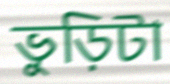
ভুড়িটা